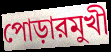
পোড়ারমুখী